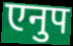
एनुप